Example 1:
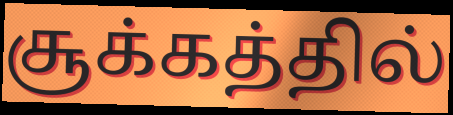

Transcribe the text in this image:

சூக்கத்தில்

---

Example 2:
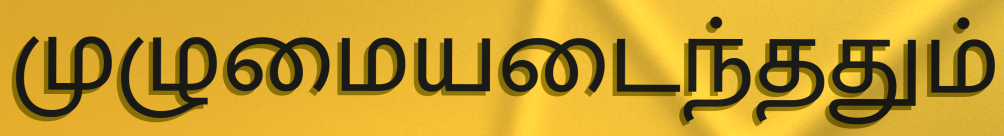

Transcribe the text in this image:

முழுமையடைந்ததும்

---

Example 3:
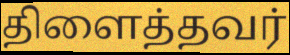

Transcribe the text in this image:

திளைத்தவர்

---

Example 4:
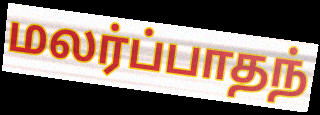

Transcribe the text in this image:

மலர்ப்பாதந்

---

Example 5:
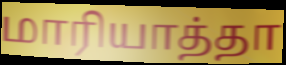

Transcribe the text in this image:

மாரியாத்தா